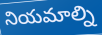
నియమాల్ని